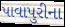
પાવાપુરીના